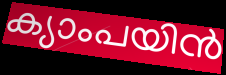
ക്യാംപയിൻ